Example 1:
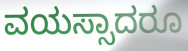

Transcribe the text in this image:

ವಯಸ್ಸಾದರೂ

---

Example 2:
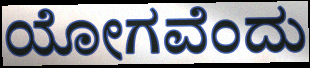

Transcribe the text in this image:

ಯೋಗವೆಂದು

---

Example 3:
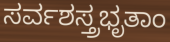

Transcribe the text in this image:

ಸರ್ವಶಸ್ತ್ರಭೃತಾಂ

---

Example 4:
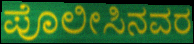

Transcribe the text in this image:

ಪೊಲೀಸಿನವರ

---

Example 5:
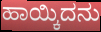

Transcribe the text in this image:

ಹಾಯ್ಕಿದನು